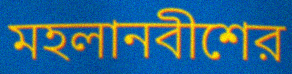
মহলানবীশের